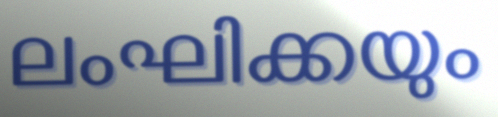
ലംഘിക്കയും